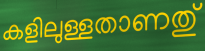
കളിലുള്ളതാണതു്